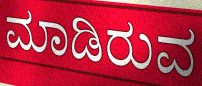
ಮಾಡಿರುವ